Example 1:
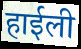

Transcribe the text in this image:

हाईली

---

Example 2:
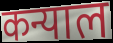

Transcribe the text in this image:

कन्याल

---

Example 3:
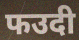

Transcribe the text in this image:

फउदी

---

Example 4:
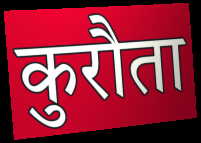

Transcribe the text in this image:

कुरौता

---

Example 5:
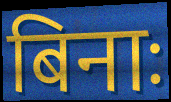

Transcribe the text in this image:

बिनाः